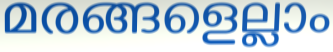
മരങ്ങളെല്ലാം